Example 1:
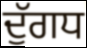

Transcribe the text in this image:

ਦੁੱਗਧ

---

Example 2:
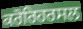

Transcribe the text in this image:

ਕਰੋਰਿਹਰਸਲ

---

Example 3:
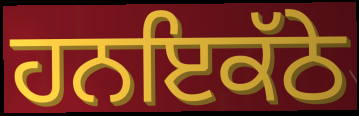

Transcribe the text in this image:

ਹਨਇਕੱਠੇ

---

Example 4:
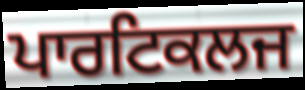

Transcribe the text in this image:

ਪਾਰਟਿਕਲਜ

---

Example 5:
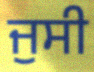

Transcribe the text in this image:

ਜੁਸੀ